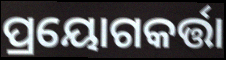
ପ୍ରୟୋଗକର୍ତ୍ତା